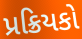
પ્રક્રિયકો